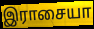
இராசையா